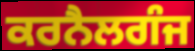
ਕਰਨੈਲਗੰਜ